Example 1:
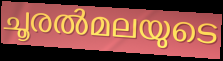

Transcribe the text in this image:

ചൂരൽമലയുടെ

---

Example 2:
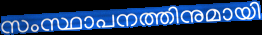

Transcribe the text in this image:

സംസ്ഥാപനത്തിനുമായി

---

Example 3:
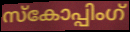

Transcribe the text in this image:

സ്കോപ്പിംഗ്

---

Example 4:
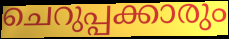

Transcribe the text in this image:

ചെറുപ്പക്കാരും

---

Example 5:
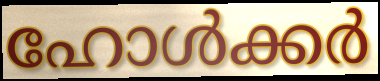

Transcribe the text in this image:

ഹോൾക്കർ